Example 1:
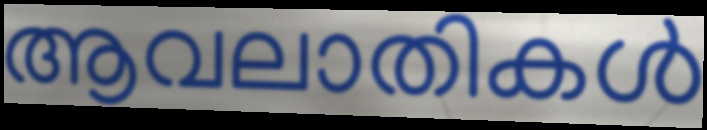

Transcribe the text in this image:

ആവലാതികൾ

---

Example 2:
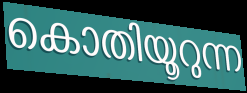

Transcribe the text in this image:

കൊതിയൂറുന്ന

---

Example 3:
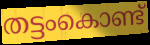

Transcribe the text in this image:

തട്ടംകൊണ്ട്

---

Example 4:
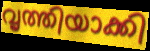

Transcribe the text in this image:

വൃത്തിയാക്കി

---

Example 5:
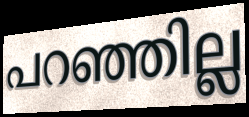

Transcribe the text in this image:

പറഞ്ഞില്ല